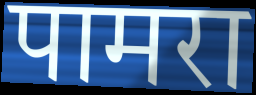
पामरा